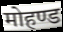
मोहण्ड